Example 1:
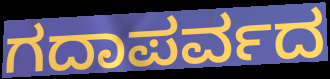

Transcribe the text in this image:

ಗದಾಪರ್ವದ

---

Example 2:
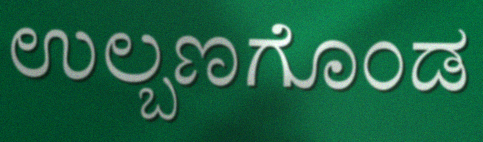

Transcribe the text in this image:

ಉಲ್ಬಣಗೊಂಡ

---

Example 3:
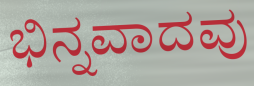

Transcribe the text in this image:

ಭಿನ್ನವಾದವು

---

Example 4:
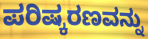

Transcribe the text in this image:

ಪರಿಷ್ಕರಣವನ್ನು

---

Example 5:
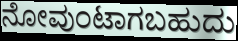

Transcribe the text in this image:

ನೋವುಂಟಾಗಬಹುದು